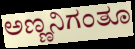
ಅಣ್ಣನಿಗಂತೂ